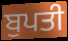
ਬੁਪਤੀ